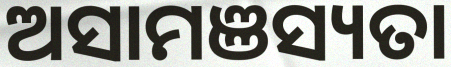
ଅସାମଞସ୍ୟତା